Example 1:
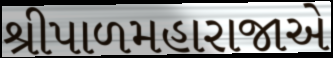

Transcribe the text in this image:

શ્રીપાળમહારાજાએ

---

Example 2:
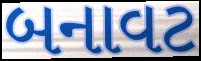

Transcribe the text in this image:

બનાવટ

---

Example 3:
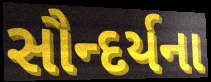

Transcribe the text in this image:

સૌન્દર્યના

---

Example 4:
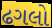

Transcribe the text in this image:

ઢગલો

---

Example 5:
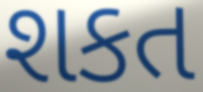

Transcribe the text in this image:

શકત